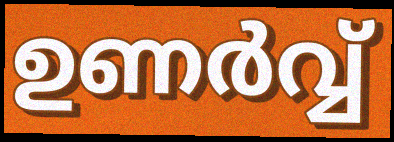
ഉണർവ്വ്